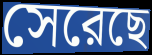
সেরেছে